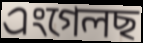
এংগেলছ